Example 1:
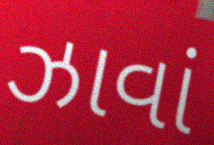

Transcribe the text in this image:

ઝાવાં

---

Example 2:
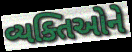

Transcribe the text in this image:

વ્યક્તિઓને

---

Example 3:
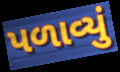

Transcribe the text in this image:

પળાવ્યું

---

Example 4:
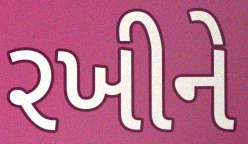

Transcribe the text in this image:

રખીને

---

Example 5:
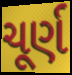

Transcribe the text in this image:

ચૂર્ણ